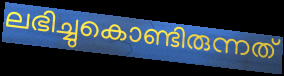
ലഭിച്ചുകൊണ്ടിരുന്നത്